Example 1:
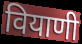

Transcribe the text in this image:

वियाणी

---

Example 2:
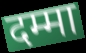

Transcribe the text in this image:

दम्मा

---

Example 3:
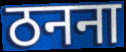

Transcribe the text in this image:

ठनना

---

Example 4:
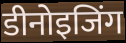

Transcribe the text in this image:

डीनोइजिंग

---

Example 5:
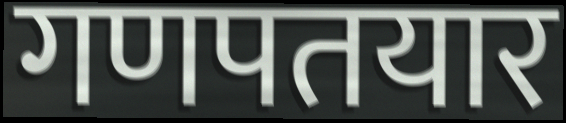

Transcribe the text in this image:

गणपतयार